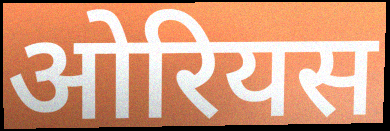
ओरियस